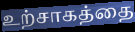
உற்சாகத்தை